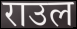
राउल